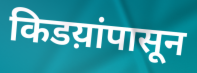
किडय़ांपासून